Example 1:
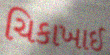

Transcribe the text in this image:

ચિકાખાઈ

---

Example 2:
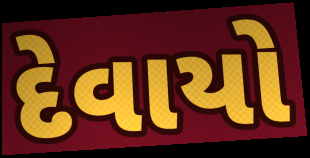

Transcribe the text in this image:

દેવાયો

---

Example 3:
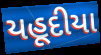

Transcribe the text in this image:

યહૂદીયા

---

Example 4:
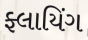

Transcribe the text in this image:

ફ્લાયિંગ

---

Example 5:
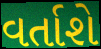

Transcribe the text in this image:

વર્તાશે